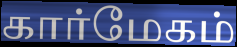
கார்மேகம்